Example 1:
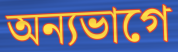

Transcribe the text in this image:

অন্যভাগে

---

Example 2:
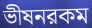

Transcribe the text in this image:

ভীষনরকম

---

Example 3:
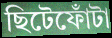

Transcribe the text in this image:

ছিটেফোঁটা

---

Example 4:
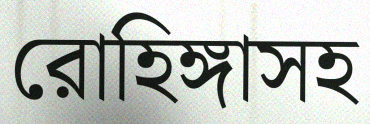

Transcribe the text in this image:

রোহিঙ্গাসহ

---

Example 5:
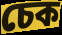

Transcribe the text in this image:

চেক